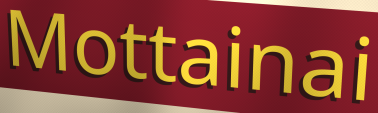
Mottainai